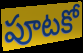
పూటకో